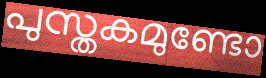
പുസ്തകമുണ്ടോ